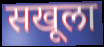
सखूला